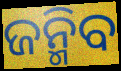
ଜନ୍ମିବ